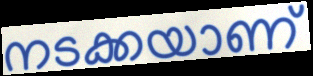
നടക്കയാണ്